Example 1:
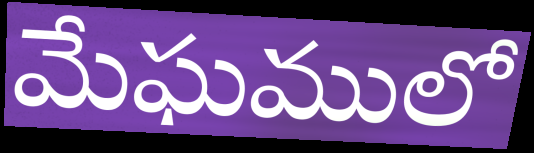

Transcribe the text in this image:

మేఘములో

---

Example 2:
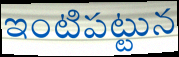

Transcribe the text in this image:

ఇంటిపట్టున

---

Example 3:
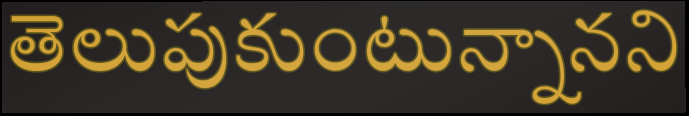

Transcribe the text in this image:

తెలుపుకుంటున్నానని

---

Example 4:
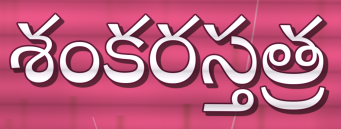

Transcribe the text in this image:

శంకరస్తత్ర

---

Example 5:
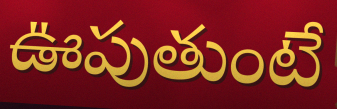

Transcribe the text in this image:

ఊపుతుంటే